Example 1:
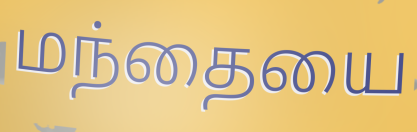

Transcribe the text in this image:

மந்தையை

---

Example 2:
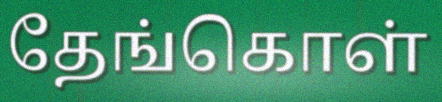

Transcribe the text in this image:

தேங்கொள்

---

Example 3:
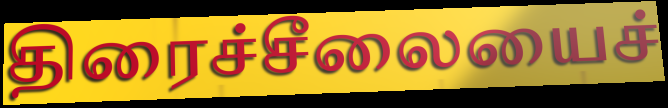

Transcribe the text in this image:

திரைச்சீலையைச்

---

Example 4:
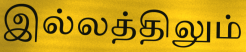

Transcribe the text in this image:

இல்லத்திலும்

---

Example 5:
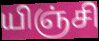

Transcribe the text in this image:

யிஞ்சி